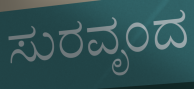
ಸುರವೃಂದ